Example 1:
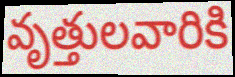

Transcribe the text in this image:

వృత్తులవారికి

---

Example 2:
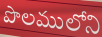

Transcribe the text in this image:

పొలములోని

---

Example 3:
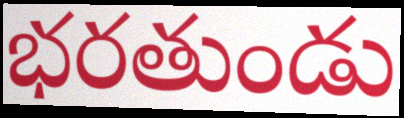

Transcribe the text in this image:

భరతుండు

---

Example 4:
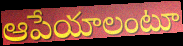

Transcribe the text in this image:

ఆపేయాలంటూ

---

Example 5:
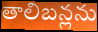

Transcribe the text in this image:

తాలిబన్లను